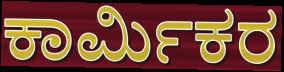
ಕಾರ್ಮಿಕರ